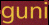
guni